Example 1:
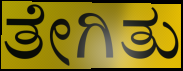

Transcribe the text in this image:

ತೇಗಿತು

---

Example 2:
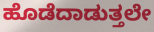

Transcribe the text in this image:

ಹೊಡೆದಾಡುತ್ತಲೇ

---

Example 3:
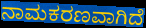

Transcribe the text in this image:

ನಾಮಕರಣವಾಗಿದೆ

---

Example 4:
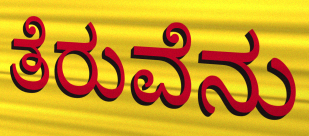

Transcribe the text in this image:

ತೆರುವೆನು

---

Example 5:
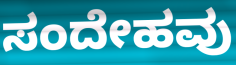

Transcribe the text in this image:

ಸಂದೇಹವು